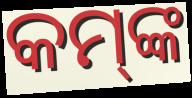
କମ୍‌ଙ୍କ